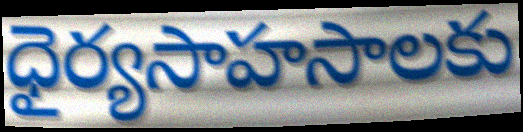
ధైర్యసాహసాలకు